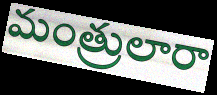
మంత్రులారా